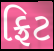
ફ્રિટ